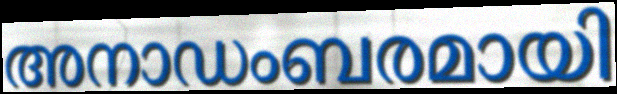
അനാഡംബരമായി